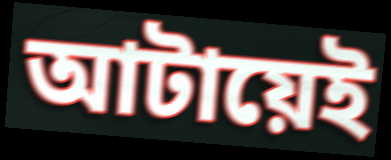
আটায়েই